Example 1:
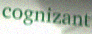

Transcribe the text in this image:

cognizant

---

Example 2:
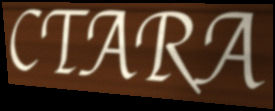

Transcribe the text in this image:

CTARA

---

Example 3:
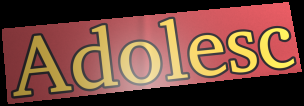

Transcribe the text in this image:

Adolesc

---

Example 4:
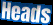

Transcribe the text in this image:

Heads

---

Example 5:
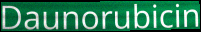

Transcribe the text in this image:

Daunorubicin